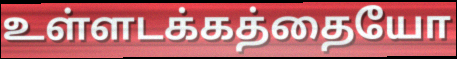
உள்ளடக்கத்தையோ